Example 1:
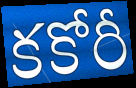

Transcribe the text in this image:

కకోరీ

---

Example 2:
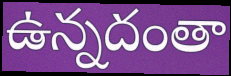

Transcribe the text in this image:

ఉన్నదంతా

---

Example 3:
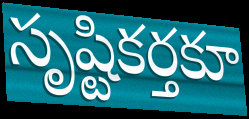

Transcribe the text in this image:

సృష్టికర్తకూ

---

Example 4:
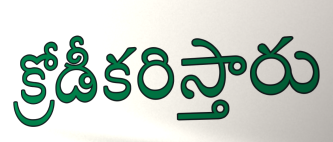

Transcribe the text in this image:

క్రోడీకరిస్తారు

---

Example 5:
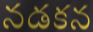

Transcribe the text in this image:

నడకన